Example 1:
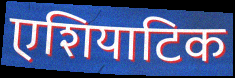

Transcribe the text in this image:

एशियाटिक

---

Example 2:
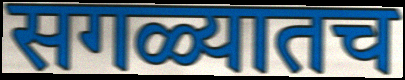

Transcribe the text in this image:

सगळ्यातच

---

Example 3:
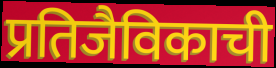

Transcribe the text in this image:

प्रतिजैविकाची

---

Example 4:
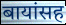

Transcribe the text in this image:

बायांसह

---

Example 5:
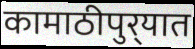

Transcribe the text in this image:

कामाठीपुर्‍यात